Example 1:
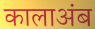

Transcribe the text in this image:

कालाअंब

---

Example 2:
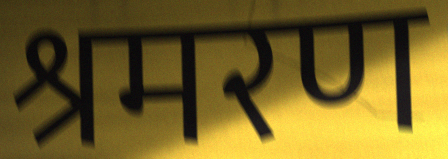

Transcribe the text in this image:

श्रमरण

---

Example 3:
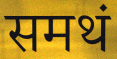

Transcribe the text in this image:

समथं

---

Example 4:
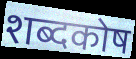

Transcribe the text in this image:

शब्दकोष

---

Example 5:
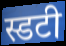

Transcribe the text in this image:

स्डटी